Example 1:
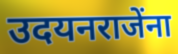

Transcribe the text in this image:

उदयनराजेंना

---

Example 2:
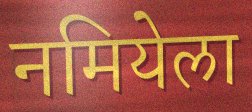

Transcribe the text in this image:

नमियेला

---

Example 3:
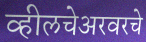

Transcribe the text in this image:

व्हीलचेअरवरचे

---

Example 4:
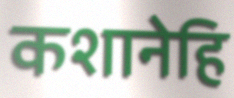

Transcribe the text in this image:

कशानेहि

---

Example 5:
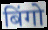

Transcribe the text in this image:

बिंगो